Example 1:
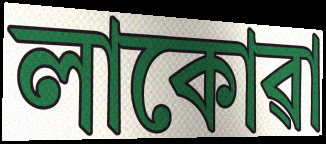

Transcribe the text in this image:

লাকোৱা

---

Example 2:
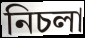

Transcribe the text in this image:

নিচলা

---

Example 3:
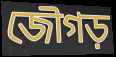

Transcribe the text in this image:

জৌগড়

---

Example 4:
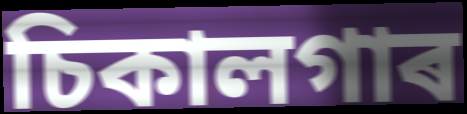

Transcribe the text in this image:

চিকালগাৰ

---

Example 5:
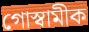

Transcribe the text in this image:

গোস্বামীক